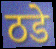
ठडे